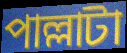
পাল্লাটা